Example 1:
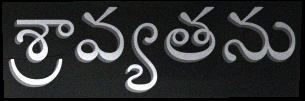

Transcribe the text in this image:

శ్రావ్యతను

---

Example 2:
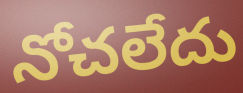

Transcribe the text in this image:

నోచలేదు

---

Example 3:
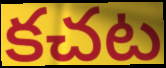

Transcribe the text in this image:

కచట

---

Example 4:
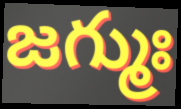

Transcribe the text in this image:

జగ్ముః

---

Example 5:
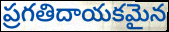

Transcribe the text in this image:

ప్రగతిదాయకమైన